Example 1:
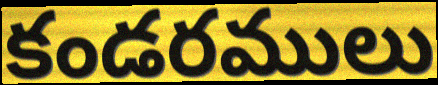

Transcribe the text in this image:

కండరములు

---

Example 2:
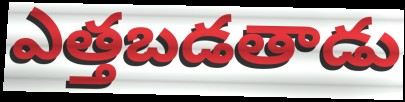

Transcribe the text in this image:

ఎత్తబడతాడు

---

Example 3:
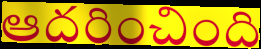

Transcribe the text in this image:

ఆదరించింది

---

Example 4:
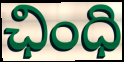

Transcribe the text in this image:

ఛింధి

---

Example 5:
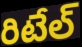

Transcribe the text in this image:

రిటేల్